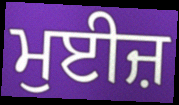
ਮੁਈਜ਼